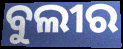
ବୁଲୀର